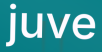
juve